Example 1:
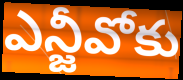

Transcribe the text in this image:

ఎన్జీవోకు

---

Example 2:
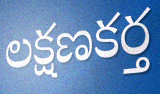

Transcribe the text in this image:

లక్షణకర్త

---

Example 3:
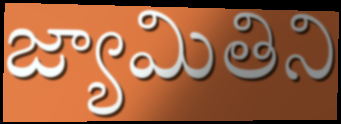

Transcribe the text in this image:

జ్యామితిని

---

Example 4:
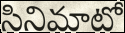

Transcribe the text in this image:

సినిమాటో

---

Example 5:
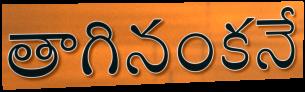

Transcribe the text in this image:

తాగినంకనే